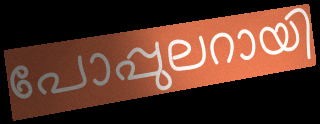
പോപ്പുലറായി